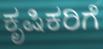
ಕೃಷಿಕರಿಗೆ